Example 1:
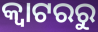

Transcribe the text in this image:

କ୍ୱାଟରରୁ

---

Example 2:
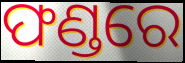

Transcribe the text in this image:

ଫଣ୍ଡରେ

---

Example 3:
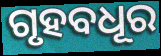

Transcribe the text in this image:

ଗୃହବଧୂର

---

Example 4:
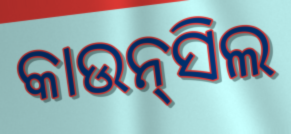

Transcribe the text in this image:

କାଉନ୍‍ସିଲ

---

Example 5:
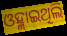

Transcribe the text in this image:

ଓହ୍ଲାଇଥିଲି